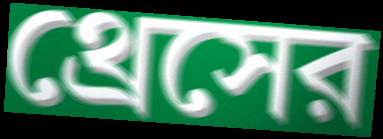
থ্রেসের